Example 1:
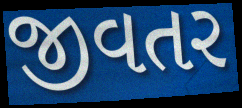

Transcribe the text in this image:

જીવતર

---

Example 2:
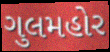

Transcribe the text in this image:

ગુલમહોર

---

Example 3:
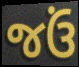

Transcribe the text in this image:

જઉં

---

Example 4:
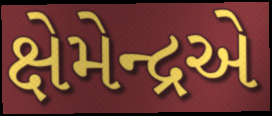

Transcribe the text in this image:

ક્ષેમેન્દ્રએ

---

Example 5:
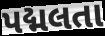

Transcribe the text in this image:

પદ્મલતા